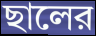
ছালের